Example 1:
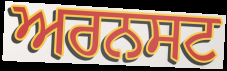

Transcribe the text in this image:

ਅਰਨਸਟ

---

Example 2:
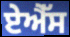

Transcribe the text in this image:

ਏਐੱਸ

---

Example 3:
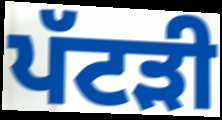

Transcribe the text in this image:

ਪੱਟੜੀ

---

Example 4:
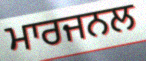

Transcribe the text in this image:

ਮਾਰਜਨਲ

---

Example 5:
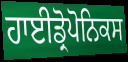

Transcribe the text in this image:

ਹਾਈਡ੍ਰੋਪੋਨਿਕਸ